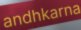
andhkarna